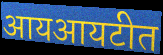
आयआयटीत